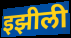
इझीली